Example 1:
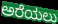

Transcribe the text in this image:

ಅರೆಯಲು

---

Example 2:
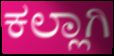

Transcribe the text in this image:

ಕಲ್ಲಾಗಿ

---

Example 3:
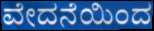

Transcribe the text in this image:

ವೇದನೆಯಿಂದ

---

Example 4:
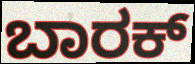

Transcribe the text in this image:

ಬಾರಕ್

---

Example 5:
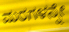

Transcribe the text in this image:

ಮರಗಳನ್ನೇ